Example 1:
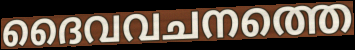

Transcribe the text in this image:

ദൈവവചനത്തെ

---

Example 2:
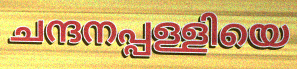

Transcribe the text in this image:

ചന്ദനപ്പള്ളിയെ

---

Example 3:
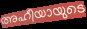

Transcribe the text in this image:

അഹീയായുടെ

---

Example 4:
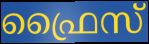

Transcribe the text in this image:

ഫ്രൈസ്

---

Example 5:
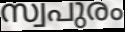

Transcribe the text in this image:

സ്വപുരം